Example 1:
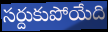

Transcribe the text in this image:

సర్దుకుపోయేది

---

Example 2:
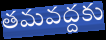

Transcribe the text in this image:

తమవద్దకు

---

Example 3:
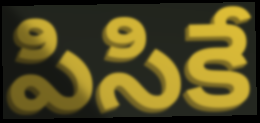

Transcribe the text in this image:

పిసికే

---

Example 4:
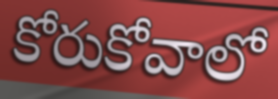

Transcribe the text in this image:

కోరుకోవాలో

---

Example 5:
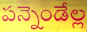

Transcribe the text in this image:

పన్నెండేల్ల